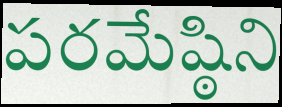
పరమేష్ఠిని